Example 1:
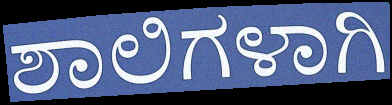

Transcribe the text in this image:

ಶಾಲಿಗಳಾಗಿ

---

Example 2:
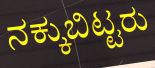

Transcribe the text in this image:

ನಕ್ಕುಬಿಟ್ಟರು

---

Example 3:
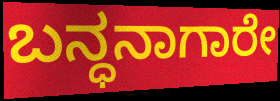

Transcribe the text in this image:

ಬನ್ಧನಾಗಾರೇ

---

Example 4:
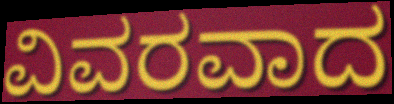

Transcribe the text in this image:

ವಿವರವಾದ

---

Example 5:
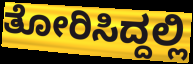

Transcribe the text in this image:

ತೋರಿಸಿದ್ದಲ್ಲಿ